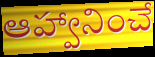
ఆహ్వానించే